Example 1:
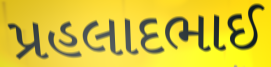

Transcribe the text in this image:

પ્રહલાદભાઈ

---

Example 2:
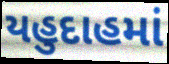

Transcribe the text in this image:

યહુદાહમાં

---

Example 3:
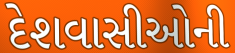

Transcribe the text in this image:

દેશવાસીઓની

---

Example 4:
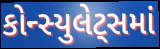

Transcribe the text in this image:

કોન્સ્યુલેટ્સમાં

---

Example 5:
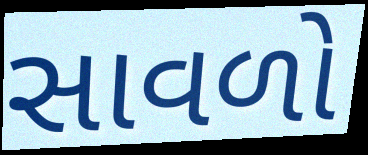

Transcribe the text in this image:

સાવળો